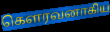
கௌரவனாகிய